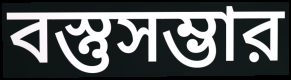
বস্তুসম্ভার